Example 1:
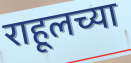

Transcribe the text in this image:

राहूलच्या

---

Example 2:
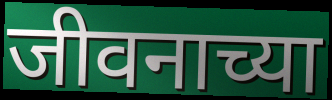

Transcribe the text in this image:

जीवनाच्या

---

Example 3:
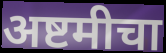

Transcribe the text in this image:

अष्टमीचा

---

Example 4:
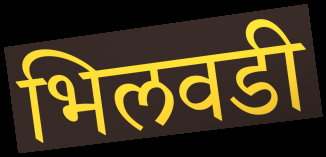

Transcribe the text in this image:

भिलवडी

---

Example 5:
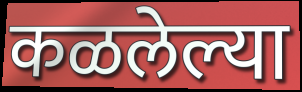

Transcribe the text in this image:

कळलेल्या